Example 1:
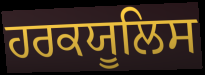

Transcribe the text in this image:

ਹਰਕਯੂਲਿਸ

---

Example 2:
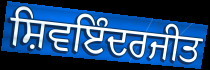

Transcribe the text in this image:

ਸ਼ਿਵਇੰਦਰਜੀਤ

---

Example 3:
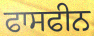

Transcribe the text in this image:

ਫਾਸਫੀਨ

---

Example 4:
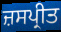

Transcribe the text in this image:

ਜ਼ਸਪ੍ਰੀਤ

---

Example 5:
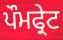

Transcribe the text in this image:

ਪੌਮਫ੍ਰੇਟ